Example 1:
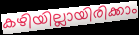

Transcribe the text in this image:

കഴിയില്ലായിരിക്കാം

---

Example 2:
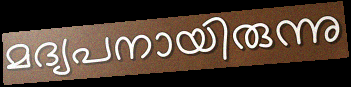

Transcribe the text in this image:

മദ്യപനായിരുന്നു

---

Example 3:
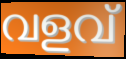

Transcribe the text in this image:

വളവ്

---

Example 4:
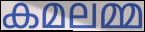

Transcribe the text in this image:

കമലമ്മ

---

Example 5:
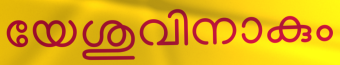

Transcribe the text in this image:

യേശുവിനാകും